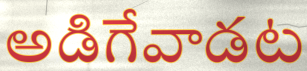
అడిగేవాడట